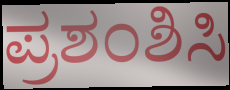
ಪ್ರಶಂಶಿಸಿ